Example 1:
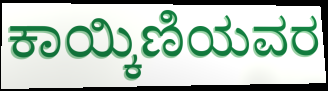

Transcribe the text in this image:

ಕಾಯ್ಕಿಣಿಯವರ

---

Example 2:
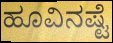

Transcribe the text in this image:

ಹೂವಿನಷ್ಟೆ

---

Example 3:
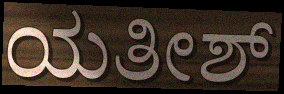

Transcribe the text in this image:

ಯತೀಶ್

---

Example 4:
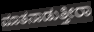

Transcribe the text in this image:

ಮಾತನಾಡುತ್ತೀರಾ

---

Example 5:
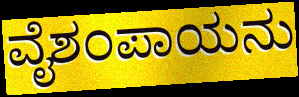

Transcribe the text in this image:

ವೈಶಂಪಾಯನು